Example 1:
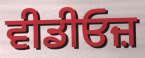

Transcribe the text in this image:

ਵੀਡੀਓਜ਼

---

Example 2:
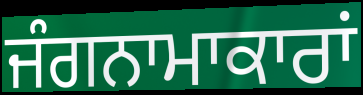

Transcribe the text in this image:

ਜੰਗਨਾਮਾਕਾਰਾਂ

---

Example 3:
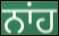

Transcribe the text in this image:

ਨਾਂਹ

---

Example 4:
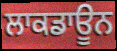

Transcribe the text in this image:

ਲਾਕਡਾਊਨ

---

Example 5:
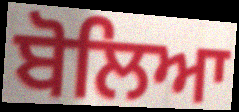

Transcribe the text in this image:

ਬੋਲਿਆ